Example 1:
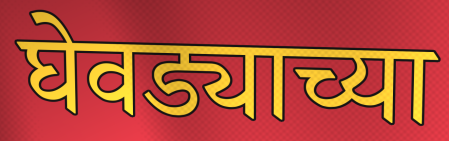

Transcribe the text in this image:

घेवड्याच्या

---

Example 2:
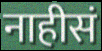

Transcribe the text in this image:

नाहीसं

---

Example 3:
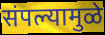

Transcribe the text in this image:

संपल्यामुळे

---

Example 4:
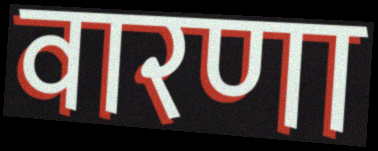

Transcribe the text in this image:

वारणा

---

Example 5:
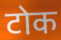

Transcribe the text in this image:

टोक